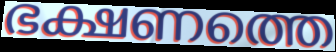
ഭക്ഷണത്തെ